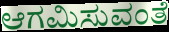
ಆಗಮಿಸುವಂತೆ